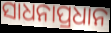
ସାଧନାପ୍ରଧାନ